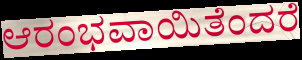
ಆರಂಭವಾಯಿತೆಂದರೆ